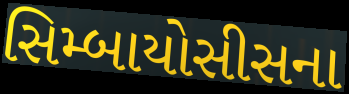
સિમ્બાયોસીસના